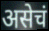
असेचं